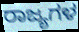
ರಾಜ್ಯಗಳ